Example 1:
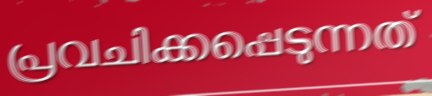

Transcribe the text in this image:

പ്രവചിക്കപ്പെടുന്നത്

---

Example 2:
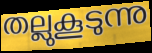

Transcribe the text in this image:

തല്ലുകൂടുന്നു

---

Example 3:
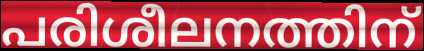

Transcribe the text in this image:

പരിശീലനത്തിന്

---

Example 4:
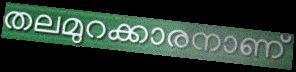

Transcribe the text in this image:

തലമുറക്കാരനാണ്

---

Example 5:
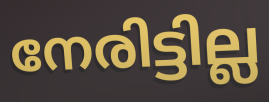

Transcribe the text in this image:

നേരിട്ടില്ല